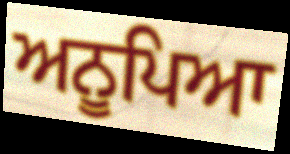
ਅਨੂਪਿਆ